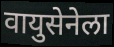
वायुसेनेला